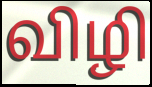
விழி